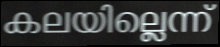
കലയില്ലെന്ന്